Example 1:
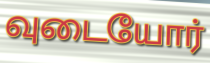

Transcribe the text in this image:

வுடையோர்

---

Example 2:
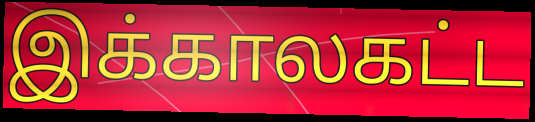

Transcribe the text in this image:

இக்காலகட்ட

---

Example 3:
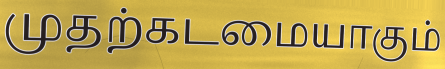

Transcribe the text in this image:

முதற்கடமையாகும்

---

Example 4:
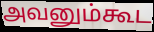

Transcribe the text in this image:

அவனும்கூட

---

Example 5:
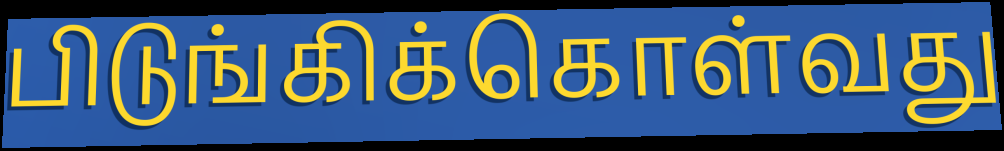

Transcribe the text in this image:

பிடுங்கிக்கொள்வது